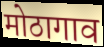
मोठागाव